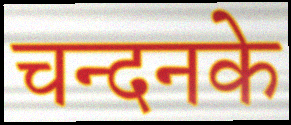
चन्दनके